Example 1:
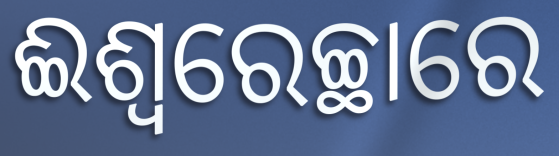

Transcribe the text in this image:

ଈଶ୍ୱରେଚ୍ଛାରେ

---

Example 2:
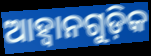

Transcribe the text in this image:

ଆହ୍ବାନଗୁଡ଼ିକ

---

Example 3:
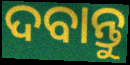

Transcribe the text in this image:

ଦବାନ୍ତୁ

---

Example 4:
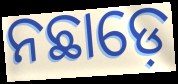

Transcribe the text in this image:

ନଛାଡ଼େ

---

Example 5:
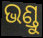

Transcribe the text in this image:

ଭଣ୍ଡୁ